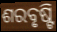
ଶରବୃଷ୍ଟି